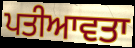
ਪਤੀਆਵਤਾ